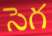
సెగ